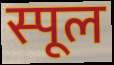
स्पूल